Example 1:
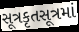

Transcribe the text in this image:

સૂત્રકૃતસૂત્રમાં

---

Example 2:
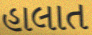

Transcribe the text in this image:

હાલાત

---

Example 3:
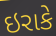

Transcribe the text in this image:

ઇરાકે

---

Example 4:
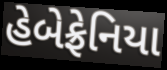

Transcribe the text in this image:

હેબેફ્રેનિયા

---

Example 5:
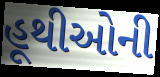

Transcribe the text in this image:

હૂથીઓની